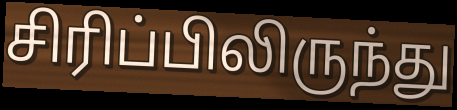
சிரிப்பிலிருந்து